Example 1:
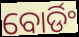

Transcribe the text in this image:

ବୋର୍ଡିଂ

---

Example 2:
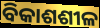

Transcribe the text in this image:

ବିକାଶଶୀଳ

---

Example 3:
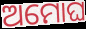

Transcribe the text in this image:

ଅମୋଘ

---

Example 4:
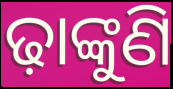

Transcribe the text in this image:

ଢ଼ାଙ୍କୁଣି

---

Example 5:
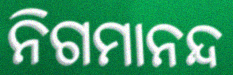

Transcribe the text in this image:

ନିଗମାନନ୍ଦ